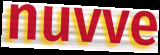
nuvve